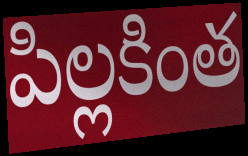
పిల్లకింత